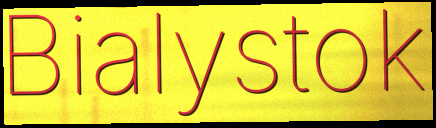
Bialystok